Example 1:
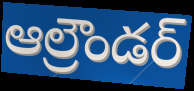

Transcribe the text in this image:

ఆల్రౌండర్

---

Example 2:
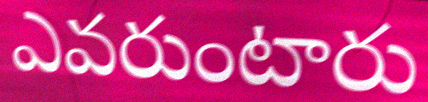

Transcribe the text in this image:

ఎవరుంటారు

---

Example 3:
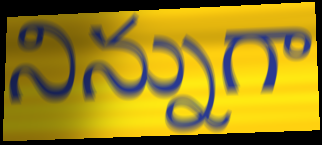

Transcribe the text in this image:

నిన్నుగా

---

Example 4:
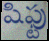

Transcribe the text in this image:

షిఫ్టు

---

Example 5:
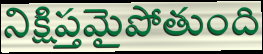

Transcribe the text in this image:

నిక్షిప్తమైపోతుంది